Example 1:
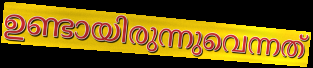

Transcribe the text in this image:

ഉണ്ടായിരുന്നുവെന്നത്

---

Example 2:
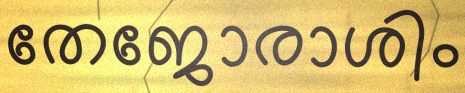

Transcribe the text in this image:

തേജോരാശിം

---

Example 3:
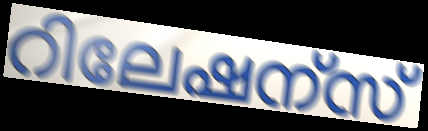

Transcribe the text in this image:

റിലേഷന്സ്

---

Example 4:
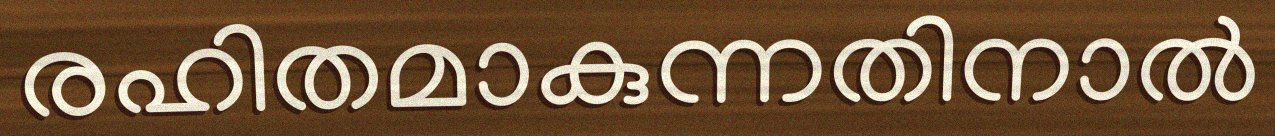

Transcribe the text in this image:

രഹിതമാകുന്നതിനാൽ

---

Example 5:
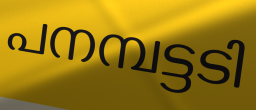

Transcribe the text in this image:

പനമ്പട്ടടി